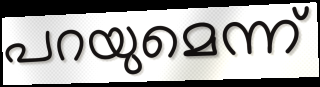
പറയുമെന്ന്